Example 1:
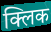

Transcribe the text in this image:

क्लिक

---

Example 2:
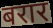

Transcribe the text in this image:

बरार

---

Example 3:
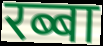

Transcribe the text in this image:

रब्बा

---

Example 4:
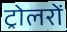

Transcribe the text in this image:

ट्रोलरों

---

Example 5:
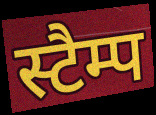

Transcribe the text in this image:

स्टैम्प